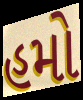
હમો